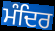
ਮੰਦਿਰ